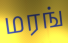
மரங்